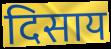
दिसाय